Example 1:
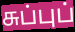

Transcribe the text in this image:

சுப்புப்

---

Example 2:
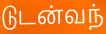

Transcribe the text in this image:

டுடன்வந்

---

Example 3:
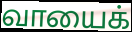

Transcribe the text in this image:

வாயைக்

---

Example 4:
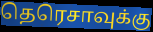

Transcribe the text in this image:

தெரெசாவுக்கு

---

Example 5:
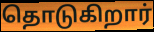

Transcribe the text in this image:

தொடுகிறார்